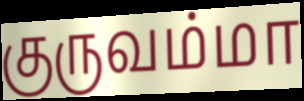
குருவம்மா